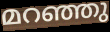
മറഞ്ഞു